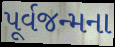
પૂર્વજન્મના